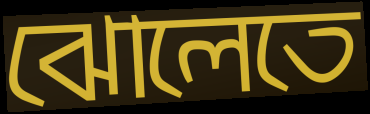
ঝোলেতে